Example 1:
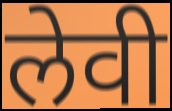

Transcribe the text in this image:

लेवी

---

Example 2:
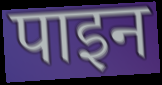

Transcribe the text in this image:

पाइन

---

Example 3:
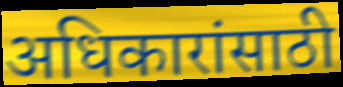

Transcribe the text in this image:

अधिकारांसाठी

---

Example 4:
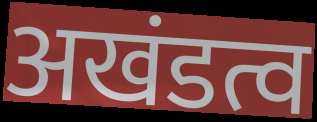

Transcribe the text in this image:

अखंडत्व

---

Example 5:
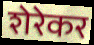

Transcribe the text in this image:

शेरेकर